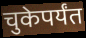
चुकेपर्यंत